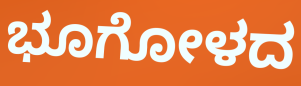
ಭೂಗೋಳದ